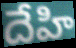
దేహి